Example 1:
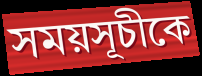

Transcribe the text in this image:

সময়সূচীকে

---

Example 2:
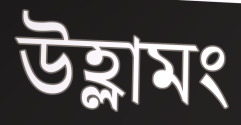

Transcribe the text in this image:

উহ্লামং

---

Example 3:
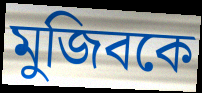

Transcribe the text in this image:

মুজিবকে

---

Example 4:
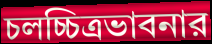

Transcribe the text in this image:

চলচ্চিত্রভাবনার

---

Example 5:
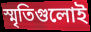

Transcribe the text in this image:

স্মৃতিগুলোই